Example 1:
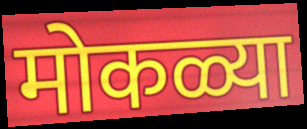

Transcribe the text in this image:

मोकळ्या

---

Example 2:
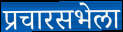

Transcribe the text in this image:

प्रचारसभेला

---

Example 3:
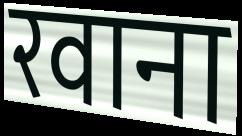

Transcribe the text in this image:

रवाना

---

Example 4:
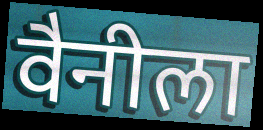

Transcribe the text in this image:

वैनीला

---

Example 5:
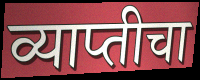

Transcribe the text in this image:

व्याप्तीचा